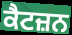
ਕੈਟਜ਼ਨ